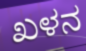
ಖಳನ